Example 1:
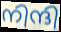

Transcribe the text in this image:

നിന്ദി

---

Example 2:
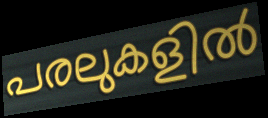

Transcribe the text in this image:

പരലുകളിൽ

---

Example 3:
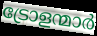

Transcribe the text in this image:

ട്രോളന്മാർ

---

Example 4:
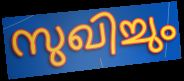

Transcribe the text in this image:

സുഖിച്ചും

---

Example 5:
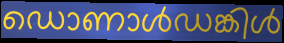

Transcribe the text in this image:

ഡൊണാൾഡങ്കിൾ